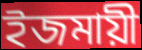
ইজমায়ী